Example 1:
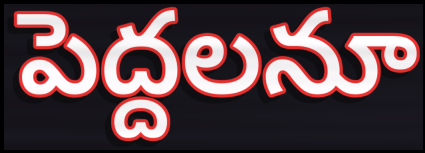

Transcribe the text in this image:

పెద్దలనూ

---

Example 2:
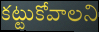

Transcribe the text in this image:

కట్టుకోవాలని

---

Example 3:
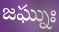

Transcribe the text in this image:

జఘ్నుః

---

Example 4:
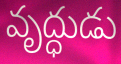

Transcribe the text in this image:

వృద్ధుడు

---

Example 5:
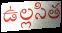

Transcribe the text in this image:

ఉల్లసిత